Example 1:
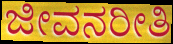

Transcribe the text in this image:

ಜೀವನರೀತಿ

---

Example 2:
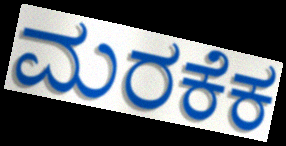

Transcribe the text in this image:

ಮರಕೆಕ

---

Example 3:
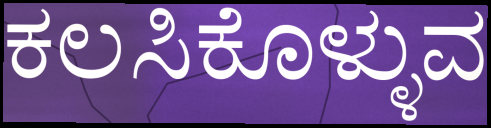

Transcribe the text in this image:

ಕಲಸಿಕೊಳ್ಳುವ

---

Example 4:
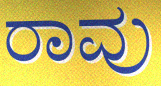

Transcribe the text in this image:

ರಾವು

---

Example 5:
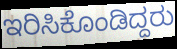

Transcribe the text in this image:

ಇರಿಸಿಕೊಂಡಿದ್ದರು